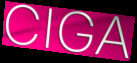
CIGA